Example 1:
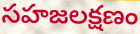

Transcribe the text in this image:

సహజలక్షణం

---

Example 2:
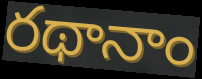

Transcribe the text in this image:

రథానాం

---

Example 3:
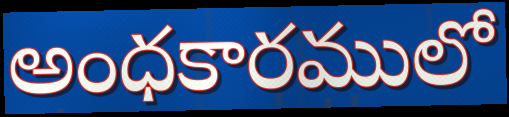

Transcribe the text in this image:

అంధకారములో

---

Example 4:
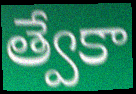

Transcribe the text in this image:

త్వేకా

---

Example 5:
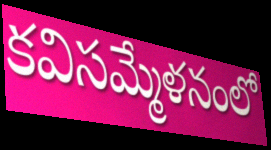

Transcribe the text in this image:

కవిసమ్మేళనంలో